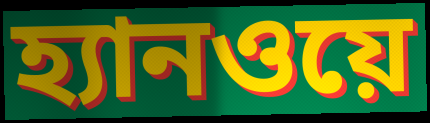
হ্যানওয়ে